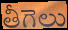
తీగెలు